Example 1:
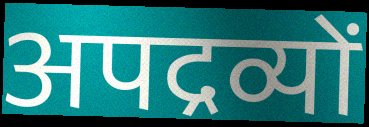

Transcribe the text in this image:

अपद्रव्यों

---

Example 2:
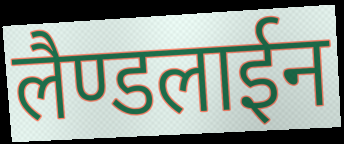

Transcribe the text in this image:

लैण्डलाईन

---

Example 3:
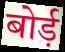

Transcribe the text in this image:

बोर्ड़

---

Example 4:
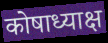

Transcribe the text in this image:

कोषाध्याक्ष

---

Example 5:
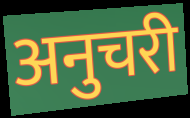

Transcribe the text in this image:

अनुचरी